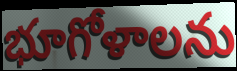
భూగోళాలను